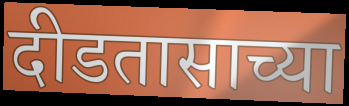
दीडतासाच्या